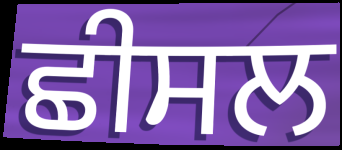
ਛੀਸਲ